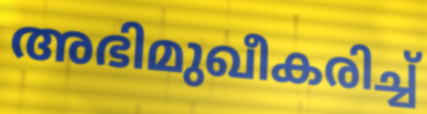
അഭിമുഖീകരിച്ച്